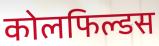
कोलफिल्डस